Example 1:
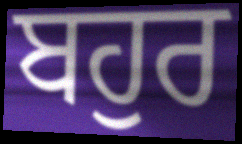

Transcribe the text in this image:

ਬਹੁਰ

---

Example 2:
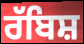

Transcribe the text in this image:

ਰੱਬਿਸ਼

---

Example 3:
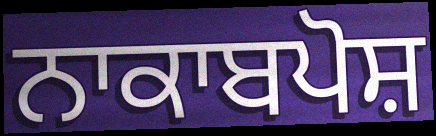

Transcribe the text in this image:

ਨਾਕਾਬਪੋਸ਼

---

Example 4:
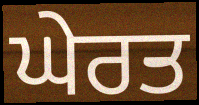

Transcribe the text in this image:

ਘੇਰਤ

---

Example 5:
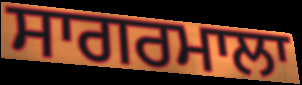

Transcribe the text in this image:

ਸਾਗਰਮਾਲਾ